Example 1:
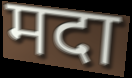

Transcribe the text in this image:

मदा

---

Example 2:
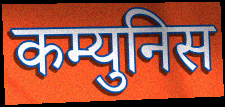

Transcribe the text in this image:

कम्युनिस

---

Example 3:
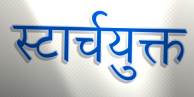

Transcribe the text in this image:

स्टार्चयुक्त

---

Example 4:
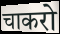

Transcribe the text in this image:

चाकरो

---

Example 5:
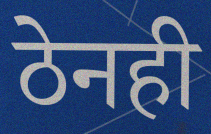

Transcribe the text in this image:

ठेनही